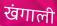
खंगाली